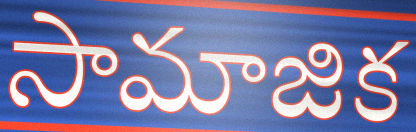
సామాజిక